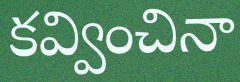
కవ్వించినా